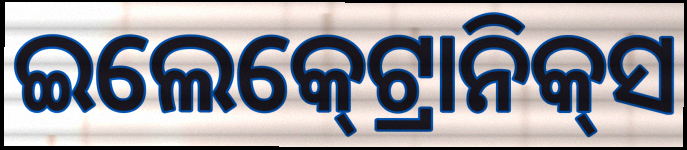
ଇଲେକ୍‍ଟ୍ରୋନିକ୍‍ସ